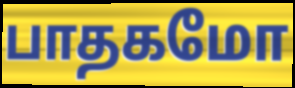
பாதகமோ